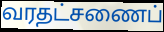
வரதட்சணைப்